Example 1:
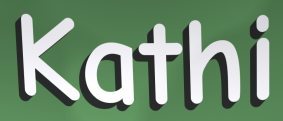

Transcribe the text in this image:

Kathi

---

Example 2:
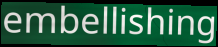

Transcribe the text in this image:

embellishing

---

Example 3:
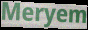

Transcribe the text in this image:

Meryem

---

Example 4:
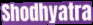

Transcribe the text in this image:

Shodhyatra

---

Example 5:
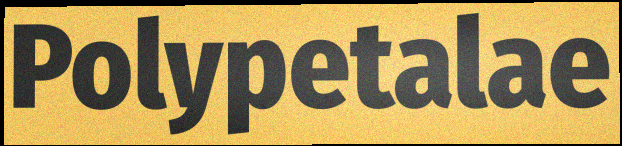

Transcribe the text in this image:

Polypetalae